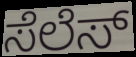
ಸೆಲೆಸ್